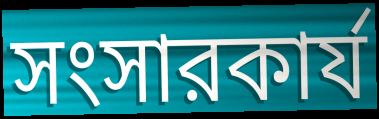
সংসারকার্য